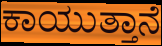
ಕಾಯುತ್ತಾನೆ